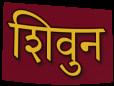
शिवुन